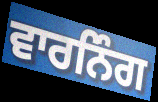
ਵਾਰਨਿੰਗ